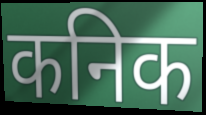
कनिक